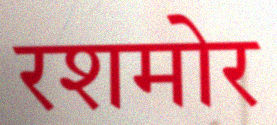
रशमोर